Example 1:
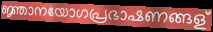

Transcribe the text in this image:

ജ്ഞാനയോഗപ്രഭാഷണങ്ങള്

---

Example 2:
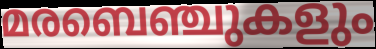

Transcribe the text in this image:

മരബെഞ്ചുകളും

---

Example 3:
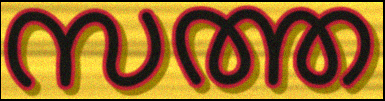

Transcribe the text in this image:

സത്ത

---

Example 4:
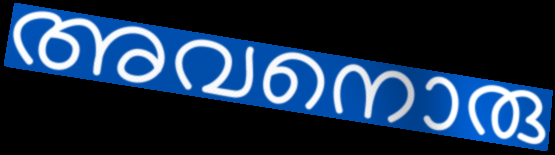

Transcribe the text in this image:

അവനൊരു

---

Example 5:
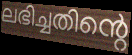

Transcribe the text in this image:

ലഭിച്ചതിന്റെ